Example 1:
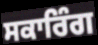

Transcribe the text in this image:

ਸਕਾਰਿੰਗ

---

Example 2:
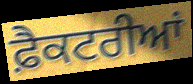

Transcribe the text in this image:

ਫ਼ੈਕਟਰੀਆਂ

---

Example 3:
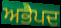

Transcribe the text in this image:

ਅਭੈਪਦ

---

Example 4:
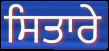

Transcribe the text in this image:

ਸਿਤਾਰੇ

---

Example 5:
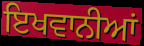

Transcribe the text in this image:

ਇਖਵਾਨੀਆਂ